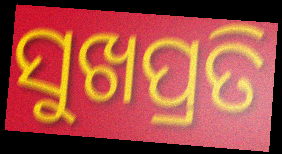
ସୁଖପ୍ରତି